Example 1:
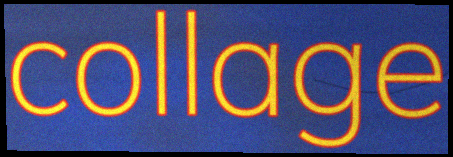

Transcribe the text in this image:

collage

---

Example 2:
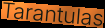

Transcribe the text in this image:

Tarantulas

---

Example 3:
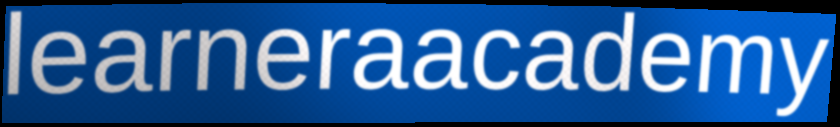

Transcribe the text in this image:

learneraacademy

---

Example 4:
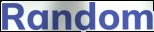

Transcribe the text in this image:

Random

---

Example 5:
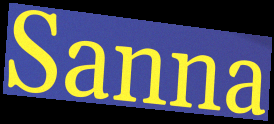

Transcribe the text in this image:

Sanna